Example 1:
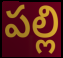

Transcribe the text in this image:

పల్లి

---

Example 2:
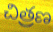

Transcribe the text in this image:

చిత్రణ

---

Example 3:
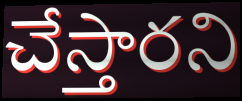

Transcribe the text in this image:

చేస్తారని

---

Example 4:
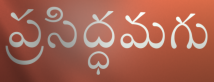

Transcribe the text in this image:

ప్రసిద్ధమగు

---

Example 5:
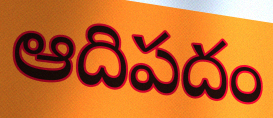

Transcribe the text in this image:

ఆదిపదం